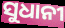
ସୁଧାନୀ